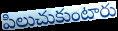
పిలుచుకుంటారు